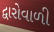
દ્વારોવાળી